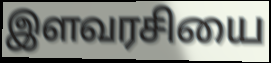
இளவரசியை